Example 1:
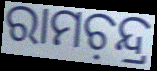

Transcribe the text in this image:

ରାମଚ଼ନ୍ଦ୍ର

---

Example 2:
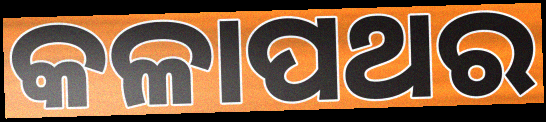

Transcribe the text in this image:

କଳାପଥର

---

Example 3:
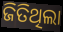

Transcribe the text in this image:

ଜିତିଥିଲା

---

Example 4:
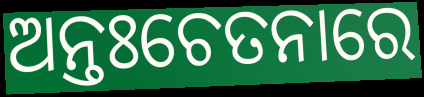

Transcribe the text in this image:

ଅନ୍ତଃଚେତନାରେ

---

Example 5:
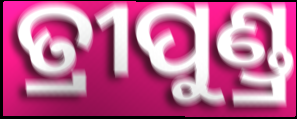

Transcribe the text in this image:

ତ୍ରୀପୁଣ୍ଡ୍ର